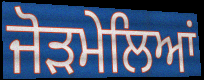
ਜੋੜਮੇਲਿਆਂ